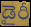
డైరీ